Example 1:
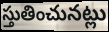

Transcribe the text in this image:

స్తుతించునట్లు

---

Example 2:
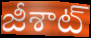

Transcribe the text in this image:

జీశాట్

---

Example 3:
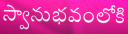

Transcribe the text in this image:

స్వానుభవంలోకి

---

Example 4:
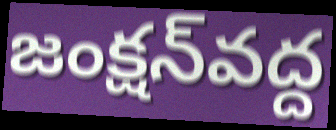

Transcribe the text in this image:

జంక్షన్‌వద్ద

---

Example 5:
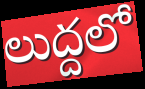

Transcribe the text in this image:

లుద్దలో